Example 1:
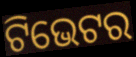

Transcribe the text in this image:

ଟିଭେଟର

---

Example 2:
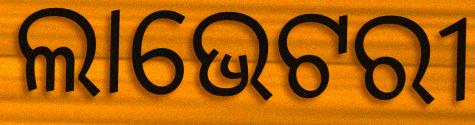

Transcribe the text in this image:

ଲାଭେଟରୀ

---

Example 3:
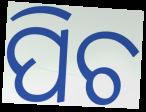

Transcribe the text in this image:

ପିଚ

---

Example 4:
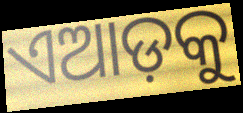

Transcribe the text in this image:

ଏଆଡ଼କୁ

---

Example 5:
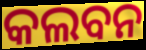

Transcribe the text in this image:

କଲବନ